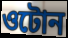
ওটোন